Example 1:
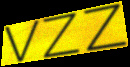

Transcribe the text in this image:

vzz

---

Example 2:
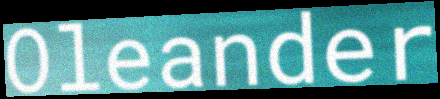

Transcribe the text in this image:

Oleander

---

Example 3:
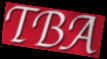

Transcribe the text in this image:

TBA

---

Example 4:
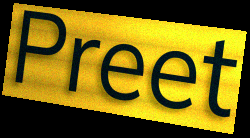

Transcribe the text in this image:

Preet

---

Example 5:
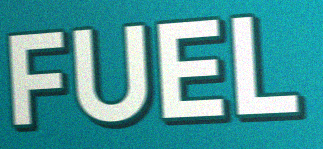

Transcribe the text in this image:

FUEL